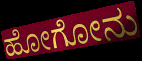
ಹೋಗೋನು